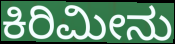
ಕಿರಿಮೀನು